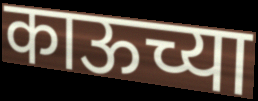
काऊच्या